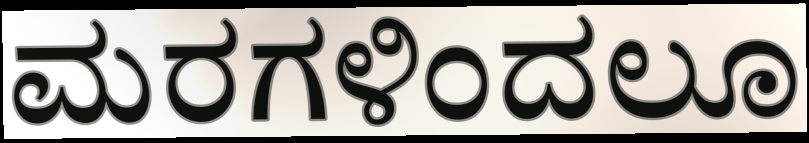
ಮರಗಳಿಂದಲೂ